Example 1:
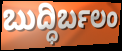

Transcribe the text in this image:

ಬುದ್ಧಿರ್ಬಲಂ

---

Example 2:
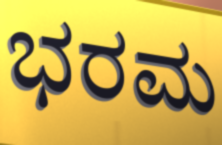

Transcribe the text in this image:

ಭರಮ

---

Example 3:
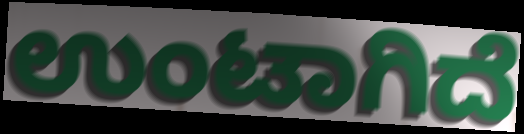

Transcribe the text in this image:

ಉಂಟಾಗಿದೆ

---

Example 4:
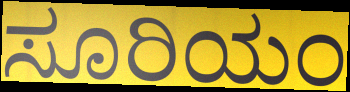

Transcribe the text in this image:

ಸೂರಿಯಂ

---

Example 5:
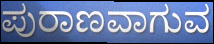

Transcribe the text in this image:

ಪುರಾಣವಾಗುವ